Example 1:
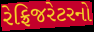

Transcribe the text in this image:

રેફ્રિજરેટરનો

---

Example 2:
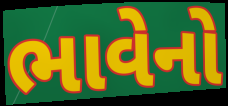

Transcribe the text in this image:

ભાવેનો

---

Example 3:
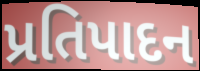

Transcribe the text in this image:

પ્રતિપાદન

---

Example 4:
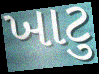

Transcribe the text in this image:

ખાટુ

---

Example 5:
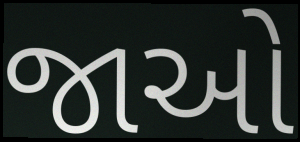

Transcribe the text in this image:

જાઓ